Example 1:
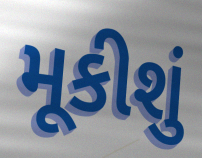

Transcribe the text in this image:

મૂકીશું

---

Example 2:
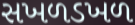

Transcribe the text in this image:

સખળડખળ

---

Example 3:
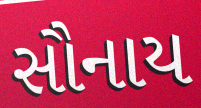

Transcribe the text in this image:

સૌનાય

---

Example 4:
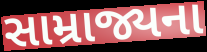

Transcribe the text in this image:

સામ્રાજ્યના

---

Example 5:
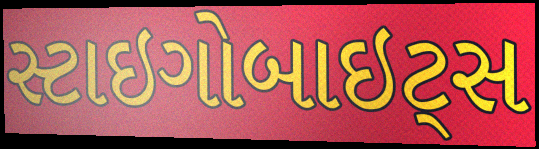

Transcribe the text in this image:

સ્ટાઇગોબાઇટ્સ